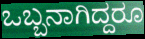
ಒಬ್ಬನಾಗಿದ್ದರೂ